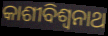
କାଶୀବିଶ୍ୱନାଥ